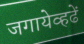
जगायेव्हढें